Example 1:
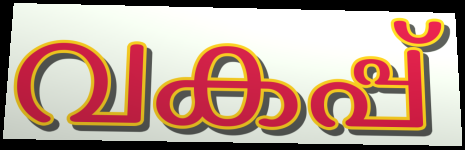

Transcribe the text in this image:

വകപ്പ്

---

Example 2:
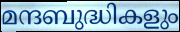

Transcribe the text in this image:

മന്ദബുദ്ധികളും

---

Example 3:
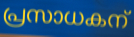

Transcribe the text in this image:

പ്രസാധകന്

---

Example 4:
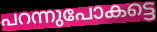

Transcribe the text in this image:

പറന്നുപോകട്ടെ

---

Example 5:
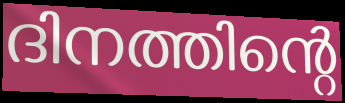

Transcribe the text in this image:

ദിനത്തിന്റെ